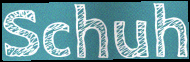
Schuh